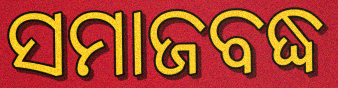
ସମାଜବଦ୍ଧ